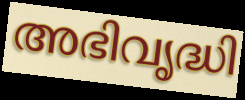
അഭിവൃദ്ധി